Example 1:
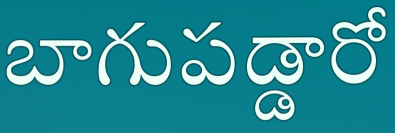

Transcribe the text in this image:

బాగుపడ్డారో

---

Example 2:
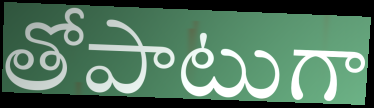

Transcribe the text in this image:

తోపాటుగా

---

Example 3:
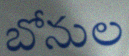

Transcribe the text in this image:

బోనుల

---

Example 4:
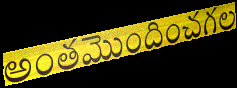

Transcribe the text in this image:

అంతమొందించగల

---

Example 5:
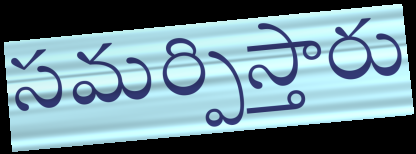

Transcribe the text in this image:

సమర్పిస్తారు